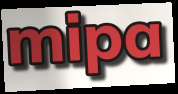
mipa